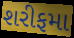
શરીફમા